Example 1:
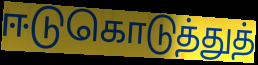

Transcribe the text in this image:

ஈடுகொடுத்துத்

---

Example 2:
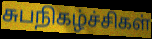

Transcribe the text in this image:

சுபநிகழ்ச்சிகள்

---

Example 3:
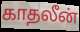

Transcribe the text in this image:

காதலீன்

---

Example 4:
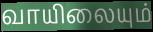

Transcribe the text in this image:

வாயிலையும்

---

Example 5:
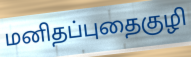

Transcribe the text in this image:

மனிதப்புதைகுழி